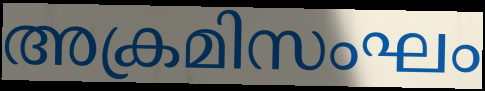
അക്രമിസംഘം